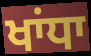
ਖਾਂਧਾ